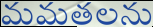
మమతలను